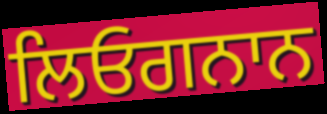
ਲਿਓਗਨਾਨ